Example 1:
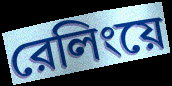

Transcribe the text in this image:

রেলিংয়ে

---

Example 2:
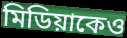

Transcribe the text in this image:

মিডিয়াকেও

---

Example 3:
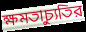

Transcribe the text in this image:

ক্ষমতাচ্যুতির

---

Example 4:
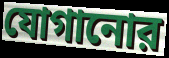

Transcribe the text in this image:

যোগানোর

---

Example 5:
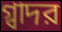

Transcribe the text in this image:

গ্বাদর